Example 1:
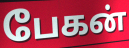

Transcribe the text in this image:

பேகன்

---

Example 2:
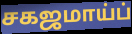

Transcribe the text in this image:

சகஜமாய்ப்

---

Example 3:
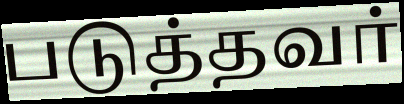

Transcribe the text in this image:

படுத்தவர்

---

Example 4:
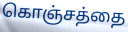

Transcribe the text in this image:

கொஞ்சத்தை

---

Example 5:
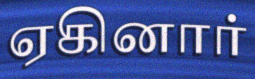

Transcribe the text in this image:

ஏகினார்